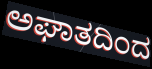
ಅಘಾತದಿಂದ